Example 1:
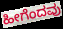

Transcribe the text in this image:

ಹೀಗೆಂದವು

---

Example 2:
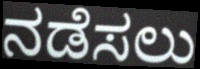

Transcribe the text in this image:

ನಡೆಸಲು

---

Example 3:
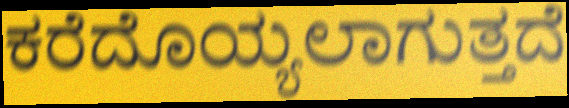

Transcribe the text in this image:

ಕರೆದೊಯ್ಯಲಾಗುತ್ತದೆ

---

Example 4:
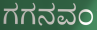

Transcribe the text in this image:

ಗಗನವಂ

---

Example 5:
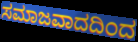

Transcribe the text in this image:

ಸಮಾಜವಾದದಿಂದ